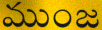
ముంజ